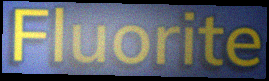
Fluorite